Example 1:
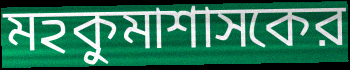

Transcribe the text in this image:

মহকুমাশাসকের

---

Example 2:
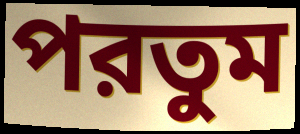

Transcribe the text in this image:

পরতুম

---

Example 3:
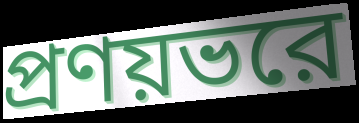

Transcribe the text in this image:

প্রণয়ভরে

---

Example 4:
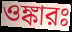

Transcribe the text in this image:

ওঙ্কারঃ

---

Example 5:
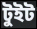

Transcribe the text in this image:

টুইট